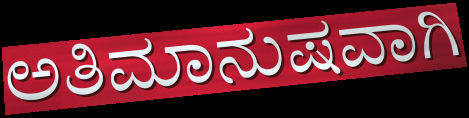
ಅತಿಮಾನುಷವಾಗಿ